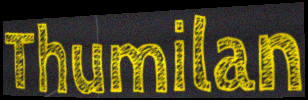
Thumilan